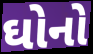
ઘોનો